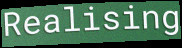
Realising